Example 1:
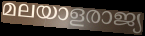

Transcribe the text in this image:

മലയാളരാജ്യ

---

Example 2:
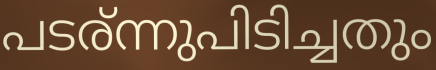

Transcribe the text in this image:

പടര്ന്നുപിടിച്ചതും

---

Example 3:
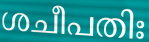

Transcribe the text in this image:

ശചീപതിഃ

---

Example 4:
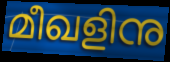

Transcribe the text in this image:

മീഖളിനു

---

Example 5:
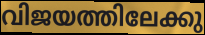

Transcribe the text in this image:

വിജയത്തിലേക്കു